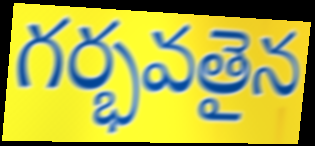
గర్భవతైన